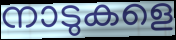
നാടുകളെ